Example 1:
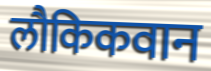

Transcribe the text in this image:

लौकिकवान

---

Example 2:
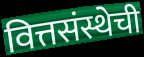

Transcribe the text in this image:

वित्तसंस्थेची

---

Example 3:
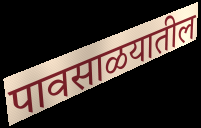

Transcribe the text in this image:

पावसाळयातील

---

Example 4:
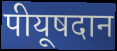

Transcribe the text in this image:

पीयूषदान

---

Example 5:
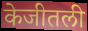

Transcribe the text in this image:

केजीतली